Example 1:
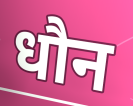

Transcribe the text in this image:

धौन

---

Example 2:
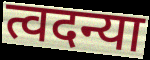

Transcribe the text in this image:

त्वदन्या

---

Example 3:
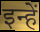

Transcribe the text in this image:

इन्‍हें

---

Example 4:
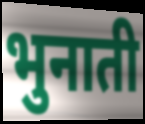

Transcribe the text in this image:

भुनाती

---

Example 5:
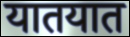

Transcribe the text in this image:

यातयात